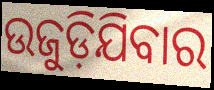
ଉଜୁଡ଼ିଯିବାର